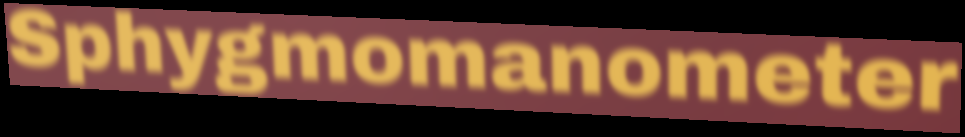
Sphygmomanometer